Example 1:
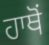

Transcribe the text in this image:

ਹਾਥੋਂ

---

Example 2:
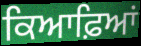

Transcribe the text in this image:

ਕਿਆਫ਼ਿਆਂ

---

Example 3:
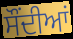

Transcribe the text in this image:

ਸੌਂਦੀਆਂ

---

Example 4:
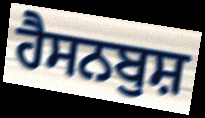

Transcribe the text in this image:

ਹੈਸਨਬੁਸ਼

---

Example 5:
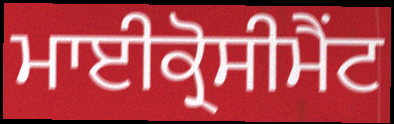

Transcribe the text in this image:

ਮਾਈਕ੍ਰੋਸੀਮੈਂਟ